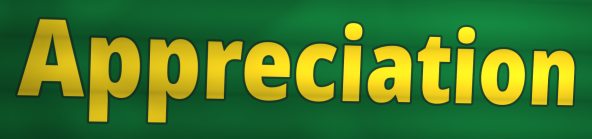
Appreciation